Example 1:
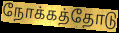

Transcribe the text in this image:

நோக்கத்தோடு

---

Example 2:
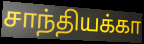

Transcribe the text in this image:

சாந்தியக்கா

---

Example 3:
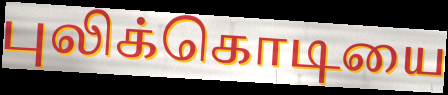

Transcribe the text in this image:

புலிக்கொடியை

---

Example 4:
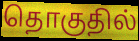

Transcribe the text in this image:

தொகுதில்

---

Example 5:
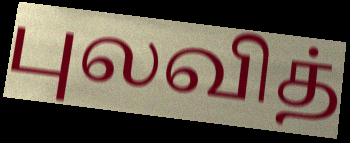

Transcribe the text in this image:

புலவித்